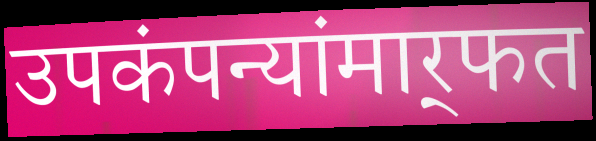
उपकंपन्यांमार्फत